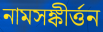
নামসঙ্কীর্ত্তন